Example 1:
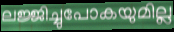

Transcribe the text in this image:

ലജ്ജിച്ചുപോകയുമില്ല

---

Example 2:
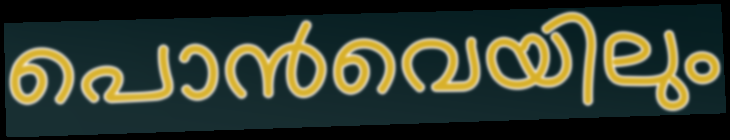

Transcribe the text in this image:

പൊൻവെയിലും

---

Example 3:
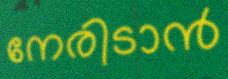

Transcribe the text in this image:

നേരിടാൻ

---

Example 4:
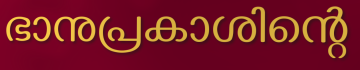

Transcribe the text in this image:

ഭാനുപ്രകാശിന്റെ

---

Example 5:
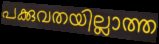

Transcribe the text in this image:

പക്കുവതയില്ലാത്ത